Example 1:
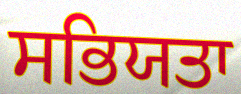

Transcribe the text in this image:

ਸਭਿਯਤਾ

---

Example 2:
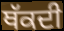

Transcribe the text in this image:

ਥੱਕਦੀ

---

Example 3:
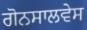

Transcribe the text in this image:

ਗੋਨਸਾਲਵੇਸ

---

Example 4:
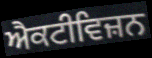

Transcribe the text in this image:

ਐਕਟੀਵਿਜ਼ਨ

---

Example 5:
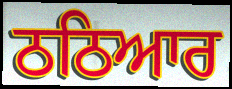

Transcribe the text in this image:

ਠਠਿਆਰ